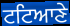
ਟਟਿਆਣੇ